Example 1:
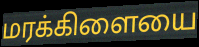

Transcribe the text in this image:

மரக்கிளையை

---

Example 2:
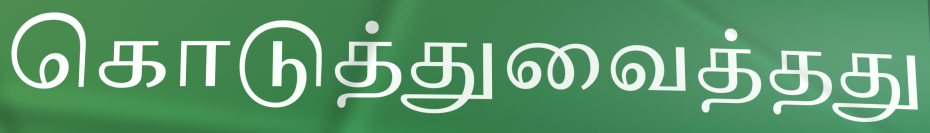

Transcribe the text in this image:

கொடுத்துவைத்தது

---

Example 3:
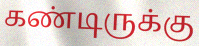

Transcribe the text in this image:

கண்டிருக்கு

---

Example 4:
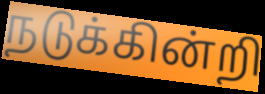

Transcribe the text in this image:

நடுக்கின்றி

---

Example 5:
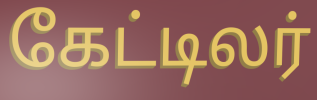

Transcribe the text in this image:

கேட்டிலர்